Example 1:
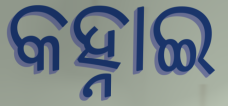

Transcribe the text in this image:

କହ୍ନାଇ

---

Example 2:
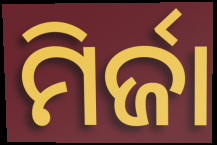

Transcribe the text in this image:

ମିର୍ଜା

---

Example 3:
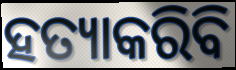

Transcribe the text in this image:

ହତ୍ୟାକରିବି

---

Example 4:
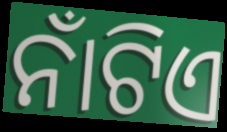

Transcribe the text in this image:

ନାଁଟିଏ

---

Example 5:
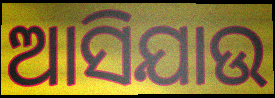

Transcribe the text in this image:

ଆସିଯାଉ